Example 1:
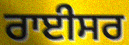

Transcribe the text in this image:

ਰਾਈਸਰ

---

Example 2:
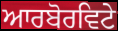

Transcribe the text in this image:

ਆਰਬੋਰਵਿਟੇ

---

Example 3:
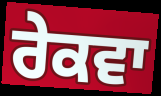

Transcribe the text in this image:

ਰੇਕਵਾ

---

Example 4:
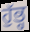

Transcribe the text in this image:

ਹੁੱਭ੍ਹ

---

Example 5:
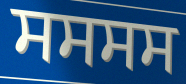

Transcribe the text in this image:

ਸਸਸਸ